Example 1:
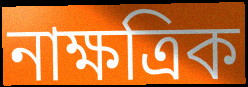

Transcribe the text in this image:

নাক্ষত্রিক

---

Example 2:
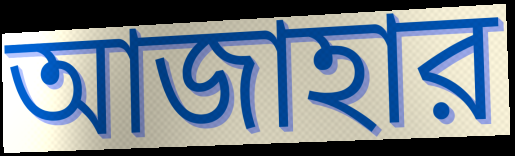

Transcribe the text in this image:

আজাহার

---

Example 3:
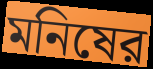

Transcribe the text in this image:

মনিষের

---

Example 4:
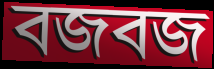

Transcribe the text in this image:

বজবজ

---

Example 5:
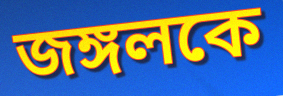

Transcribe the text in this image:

জঙ্গলকে